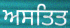
ਅਸਤਿਤ